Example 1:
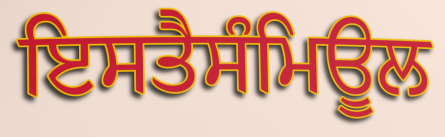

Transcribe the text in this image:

ਇਸਤੈਸੰਮਿਊਲ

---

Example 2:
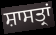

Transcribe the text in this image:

ਸ਼ਾਸਤ੍ਰਾਂ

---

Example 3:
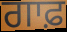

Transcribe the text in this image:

ਗਾਫ਼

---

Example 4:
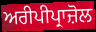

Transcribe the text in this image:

ਅਰੀਪੀਪ੍ਰਾਜ਼ੋਲ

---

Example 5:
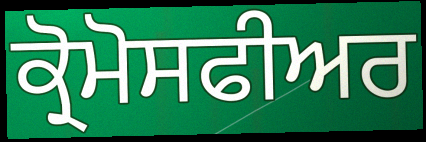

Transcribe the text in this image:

ਕ੍ਰੋਮੋਸਫੀਅਰ